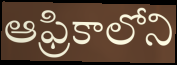
ఆఫ్రికాలోని